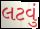
લટવું